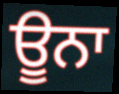
ਊਨਾ